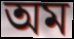
অম